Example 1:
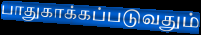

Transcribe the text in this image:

பாதுகாக்கப்படுவதும்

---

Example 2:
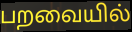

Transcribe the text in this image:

பறவையில்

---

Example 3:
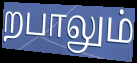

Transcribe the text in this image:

றபாலும்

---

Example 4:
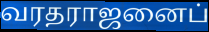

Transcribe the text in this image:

வரதராஜனைப்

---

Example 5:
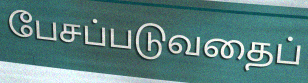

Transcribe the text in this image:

பேசப்படுவதைப்